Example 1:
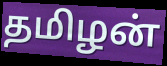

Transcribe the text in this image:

தமிழன்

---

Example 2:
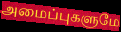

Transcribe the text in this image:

அமைப்புகளுமே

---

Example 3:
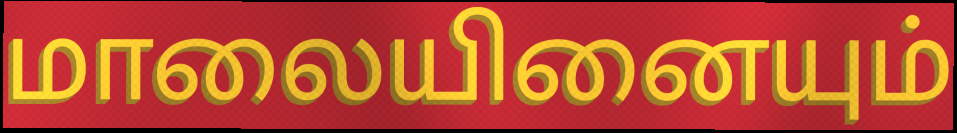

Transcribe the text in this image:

மாலையினையும்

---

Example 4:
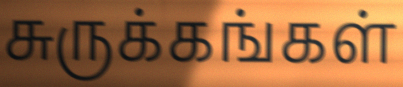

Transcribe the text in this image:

சுருக்கங்கள்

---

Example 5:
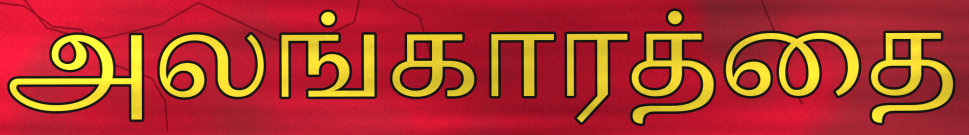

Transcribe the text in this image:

அலங்காரத்தை